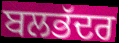
ਬਲਭੱਦਰ